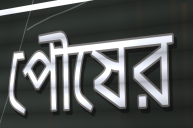
পৌষের